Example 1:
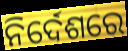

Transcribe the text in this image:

ନିର୍ଦେଶରେ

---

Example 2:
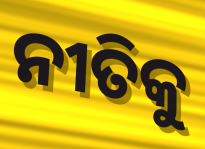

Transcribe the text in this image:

ନୀତିକୁ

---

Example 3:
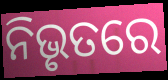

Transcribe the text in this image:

ନିଭୃତରେ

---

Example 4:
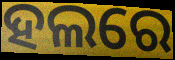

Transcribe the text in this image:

ହଲରେ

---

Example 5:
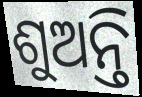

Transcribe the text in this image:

ଶୁଅନ୍ତି